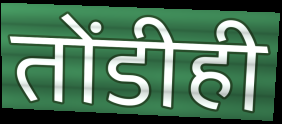
तोंडीही